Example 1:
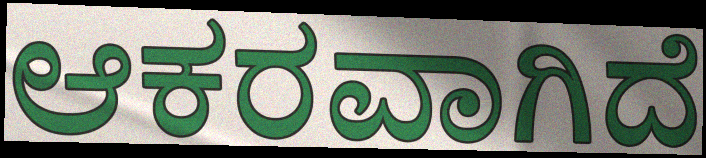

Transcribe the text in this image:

ಆಕರವಾಗಿದೆ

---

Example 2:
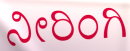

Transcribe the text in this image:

ನೀರಿಂಗಿ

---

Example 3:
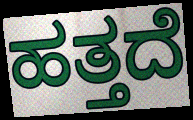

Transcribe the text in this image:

ಹತ್ತದೆ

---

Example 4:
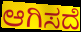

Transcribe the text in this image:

ಆಗಿಸದೆ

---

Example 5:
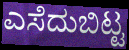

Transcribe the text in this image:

ಎಸೆದುಬಿಟ್ಟ